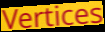
Vertices